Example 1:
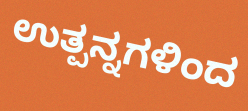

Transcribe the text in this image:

ಉತ್ಪನ್ನಗಳಿಂದ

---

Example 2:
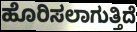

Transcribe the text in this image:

ಹೊರಿಸಲಾಗುತ್ತಿದೆ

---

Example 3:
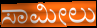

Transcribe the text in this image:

ಸಾಮೀಲು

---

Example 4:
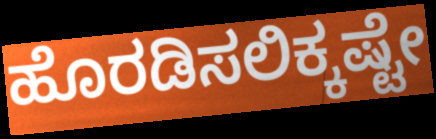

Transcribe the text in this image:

ಹೊರಡಿಸಲಿಕ್ಕಷ್ಟೇ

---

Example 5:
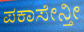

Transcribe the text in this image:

ಪಕಾಸೇನ್ತೀ